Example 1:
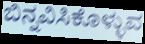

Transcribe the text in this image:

ಬಿನ್ನವಿಸಿಕೊಳ್ಳುವ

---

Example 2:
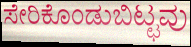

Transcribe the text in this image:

ಸೇರಿಕೊಂಡುಬಿಟ್ಟವು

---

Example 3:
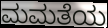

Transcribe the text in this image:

ಮಮತೆಯ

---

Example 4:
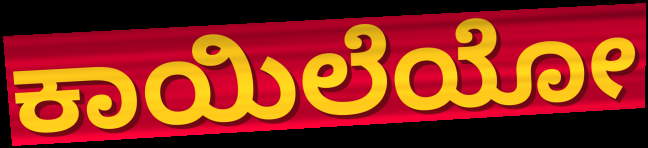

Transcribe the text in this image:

ಕಾಯಿಲೆಯೋ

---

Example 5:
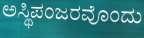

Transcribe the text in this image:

ಅಸ್ಥಿಪಂಜರವೊಂದು